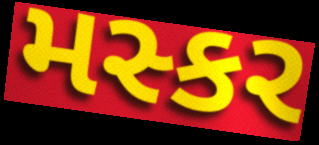
મસ્કર